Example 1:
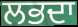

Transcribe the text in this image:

ਲਭਦਾ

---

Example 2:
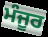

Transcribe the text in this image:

ਮੰਜੂਰ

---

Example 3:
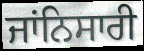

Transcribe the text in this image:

ਜਾਂਨਿਸਾਰੀ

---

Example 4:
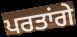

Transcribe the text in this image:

ਪਰਤਾਂਗੇ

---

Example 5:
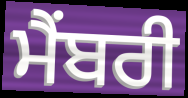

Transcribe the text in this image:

ਮੈਂਬਰੀ